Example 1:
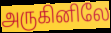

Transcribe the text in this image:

அருகினிலே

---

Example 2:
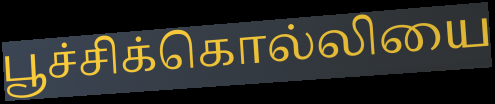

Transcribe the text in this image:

பூச்சிக்கொல்லியை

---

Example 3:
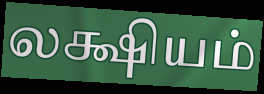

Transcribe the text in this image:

லக்ஷியம்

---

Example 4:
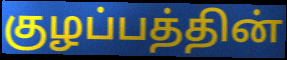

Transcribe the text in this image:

குழப்பத்தின்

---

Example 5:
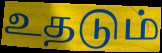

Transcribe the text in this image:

உதடும்